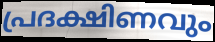
പ്രദക്ഷിണവും